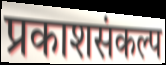
प्रकाशसंकल्प